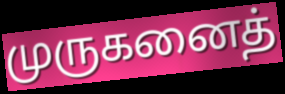
முருகனைத்